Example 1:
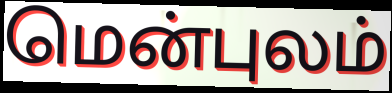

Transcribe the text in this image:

மென்புலம்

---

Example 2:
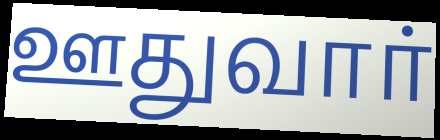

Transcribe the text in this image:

ஊதுவார்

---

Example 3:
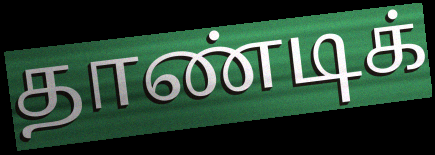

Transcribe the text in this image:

தாண்டிக்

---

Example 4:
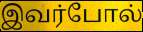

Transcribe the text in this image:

இவர்போல்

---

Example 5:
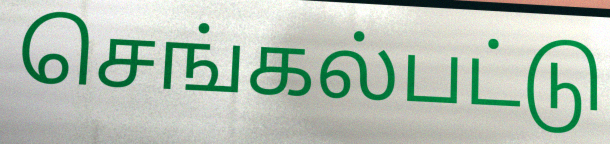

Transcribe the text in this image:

செங்கல்பட்டு